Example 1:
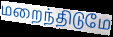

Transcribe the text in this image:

மறைந்திடுமே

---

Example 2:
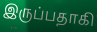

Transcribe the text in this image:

இருப்பதாகி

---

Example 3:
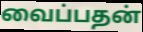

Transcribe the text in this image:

வைப்பதன்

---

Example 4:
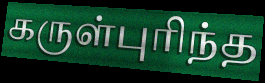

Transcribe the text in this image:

கருள்புரிந்த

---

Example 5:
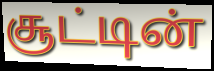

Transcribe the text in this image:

சூட்டின்